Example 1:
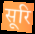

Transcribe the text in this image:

सूरि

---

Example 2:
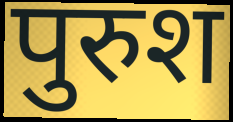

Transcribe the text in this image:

पुरुश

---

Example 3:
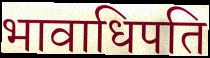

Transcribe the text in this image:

भावाधिपति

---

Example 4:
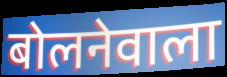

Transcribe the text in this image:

बोलनेवाला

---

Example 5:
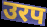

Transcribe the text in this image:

उरप